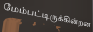
மேம்பட்டிருக்கின்றன